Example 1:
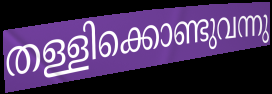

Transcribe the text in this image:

തള്ളിക്കൊണ്ടുവന്നു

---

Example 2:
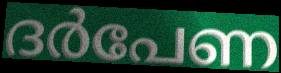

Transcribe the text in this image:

ദർപേണ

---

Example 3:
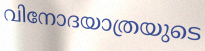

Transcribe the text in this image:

വിനോദയാത്രയുടെ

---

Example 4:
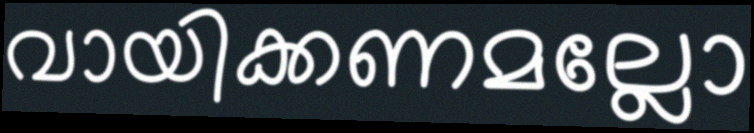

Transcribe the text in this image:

വായിക്കണമല്ലോ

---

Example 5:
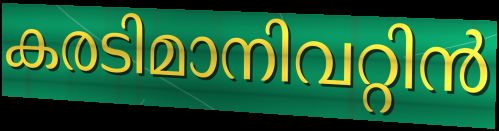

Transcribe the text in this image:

കരടിമാനിവറ്റിൻ